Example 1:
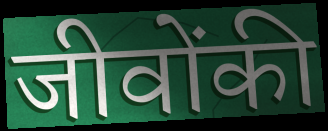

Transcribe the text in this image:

जीवोंकी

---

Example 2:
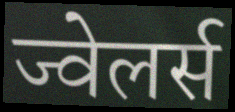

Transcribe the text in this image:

ज्वेलर्स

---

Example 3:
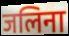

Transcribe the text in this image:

जलिना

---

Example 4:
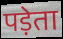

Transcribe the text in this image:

पड़ेता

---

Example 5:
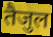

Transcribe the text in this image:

तैजुल